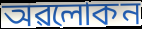
অৱলোকন